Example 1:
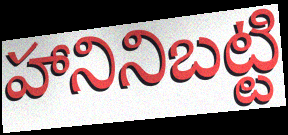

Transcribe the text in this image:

హానినిబట్టి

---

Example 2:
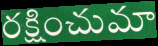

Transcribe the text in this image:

రక్షించుమా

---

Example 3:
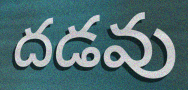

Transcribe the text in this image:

దడవు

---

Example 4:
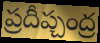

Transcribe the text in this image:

ప్రదీప్చంద్ర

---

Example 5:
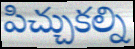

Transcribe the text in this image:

పిచ్చుకల్ని